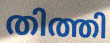
തിത്തി